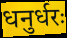
धनुर्धरः